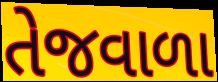
તેજવાળા